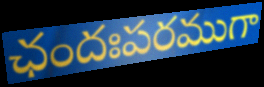
ఛందఃపరముగా